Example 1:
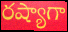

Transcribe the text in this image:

రష్యాగా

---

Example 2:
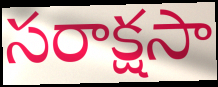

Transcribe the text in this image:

సరాక్షసా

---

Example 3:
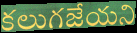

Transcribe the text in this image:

కలుగజేయని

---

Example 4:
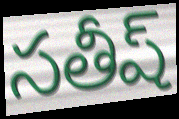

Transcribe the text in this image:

సతీష్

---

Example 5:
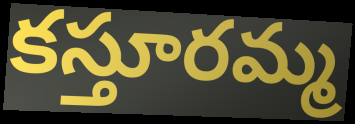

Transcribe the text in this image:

కస్తూరమ్మ